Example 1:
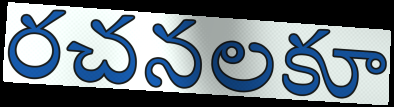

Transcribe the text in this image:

రచనలకూ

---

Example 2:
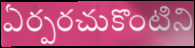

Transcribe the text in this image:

ఏర్పరచుకొంటిని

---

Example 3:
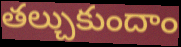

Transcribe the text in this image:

తల్చుకుందాం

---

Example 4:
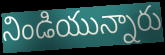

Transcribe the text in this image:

నిండియున్నారు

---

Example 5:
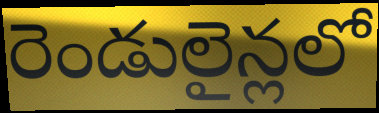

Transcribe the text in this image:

రెండులైన్లలో